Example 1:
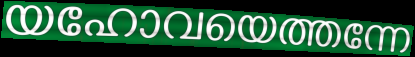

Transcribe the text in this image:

യഹോവയെത്തന്നേ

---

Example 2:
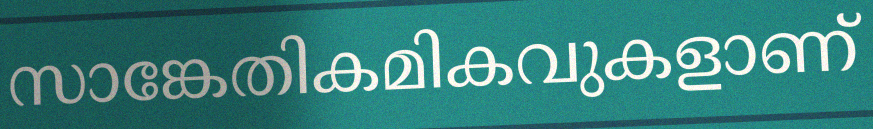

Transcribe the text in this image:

സാങ്കേതികമികവുകളാണ്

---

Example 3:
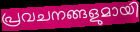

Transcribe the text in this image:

പ്രവചനങ്ങളുമായി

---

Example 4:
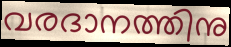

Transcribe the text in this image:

വരദാനത്തിനു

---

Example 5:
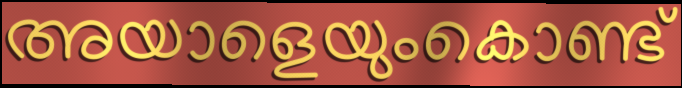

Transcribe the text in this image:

അയാളെയുംകൊണ്ട്